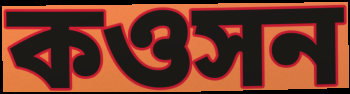
কওসন